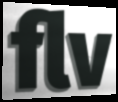
flv